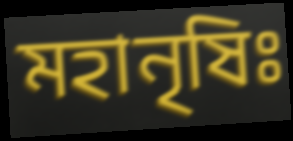
মহানৃষিঃ